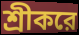
শ্রীকরে